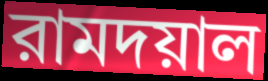
রামদয়াল